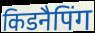
किडनैपिंग